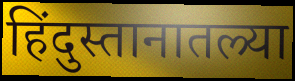
हिंदुस्तानातल्या